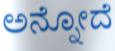
ಅನ್ನೋದೆ